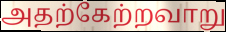
அதற்கேற்றவாறு